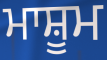
ਮਾਸ਼ੂਮ